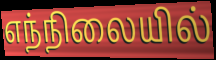
எந்நிலையில்